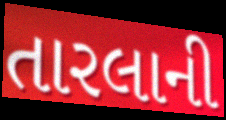
તારલાની